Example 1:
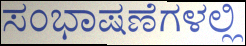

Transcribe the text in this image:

ಸಂಭಾಷಣೆಗಳಲ್ಲಿ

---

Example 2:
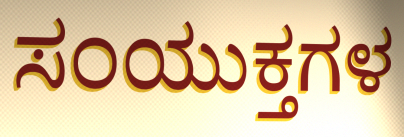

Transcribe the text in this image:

ಸಂಯುಕ್ತಗಳ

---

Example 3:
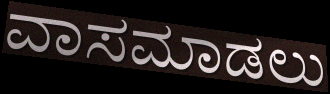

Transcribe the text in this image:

ವಾಸಮಾಡಲು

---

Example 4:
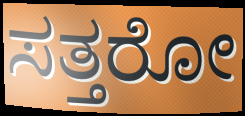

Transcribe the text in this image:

ಸತ್ತರೋ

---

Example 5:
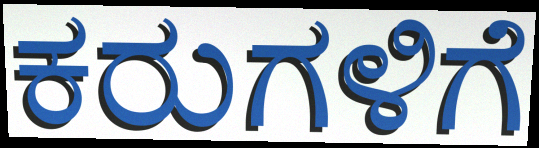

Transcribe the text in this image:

ಕರುಗಳಿಗೆ